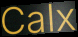
Calx